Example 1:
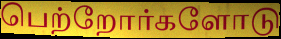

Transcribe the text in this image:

பெற்றோர்களோடு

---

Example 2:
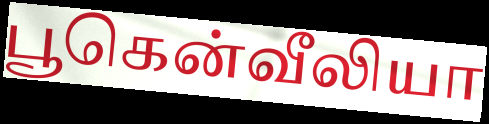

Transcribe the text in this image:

பூகென்வீலியா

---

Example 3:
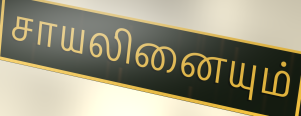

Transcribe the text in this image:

சாயலினையும்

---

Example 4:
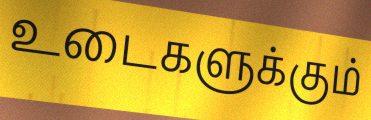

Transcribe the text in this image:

உடைகளுக்கும்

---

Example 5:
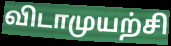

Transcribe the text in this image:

விடாமுயற்சி